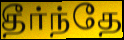
தீர்ந்தே